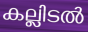
കല്ലിടൽ